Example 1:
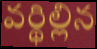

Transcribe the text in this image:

వర్థిల్లిన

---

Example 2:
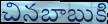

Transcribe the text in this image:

చినబాబుకి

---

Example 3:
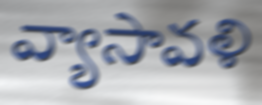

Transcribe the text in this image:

వ్యాసావళి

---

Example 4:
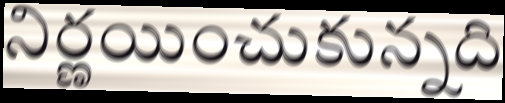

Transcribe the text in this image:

నిర్ణయించుకున్నది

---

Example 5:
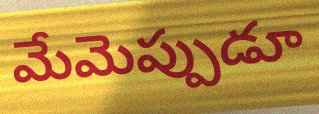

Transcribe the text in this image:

మేమెప్పుడూ